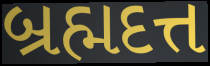
બ્રહ્મદત્ત